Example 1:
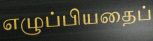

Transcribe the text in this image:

எழுப்பியதைப்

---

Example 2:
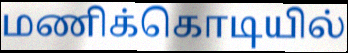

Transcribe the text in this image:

மணிக்கொடியில்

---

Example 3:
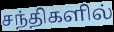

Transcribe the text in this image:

சந்திகளில்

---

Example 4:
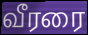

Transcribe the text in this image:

வீரரை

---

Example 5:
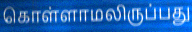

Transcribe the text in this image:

கொள்ளாமலிருப்பது